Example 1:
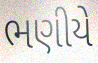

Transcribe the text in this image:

ભણીયે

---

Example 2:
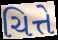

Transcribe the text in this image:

ચિત્તે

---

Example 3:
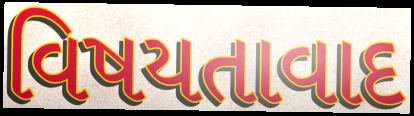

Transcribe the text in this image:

વિષયતાવાદ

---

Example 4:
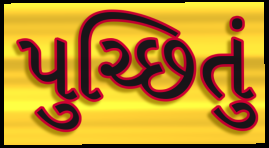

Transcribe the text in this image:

પુચ્છિતું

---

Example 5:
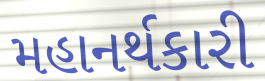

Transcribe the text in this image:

મહાનર્થકારી